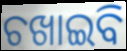
ଚଖାଇବି